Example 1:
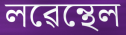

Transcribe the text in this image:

লৱেন্থেল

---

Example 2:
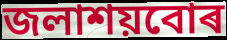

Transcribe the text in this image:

জলাশয়বোৰ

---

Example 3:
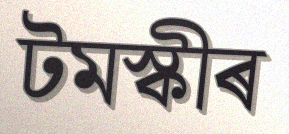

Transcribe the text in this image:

টমস্কীৰ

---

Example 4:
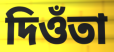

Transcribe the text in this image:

দিওঁতা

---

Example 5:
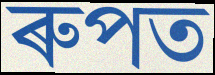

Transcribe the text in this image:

ৰুপত